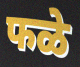
फळे